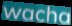
wacha